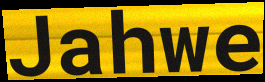
Jahwe